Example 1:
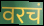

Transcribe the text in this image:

वरचं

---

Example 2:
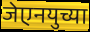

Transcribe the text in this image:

जेएनयुच्या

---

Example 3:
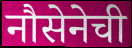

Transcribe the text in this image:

नौसेनेची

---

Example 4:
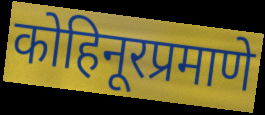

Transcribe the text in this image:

कोहिनूरप्रमाणे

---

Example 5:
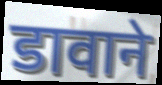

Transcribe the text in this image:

डावाने